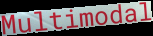
Multimodal